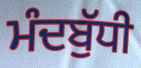
ਮੰਦਬੁੱਧੀ